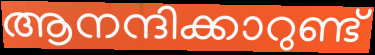
ആനന്ദിക്കാറുണ്ട്